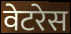
वेटरेस